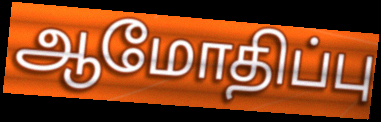
ஆமோதிப்பு